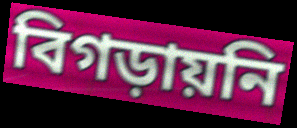
বিগড়ায়নি